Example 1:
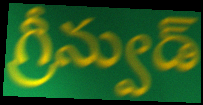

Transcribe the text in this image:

గ్రీన్వుడ్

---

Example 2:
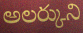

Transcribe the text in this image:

అలర్కుని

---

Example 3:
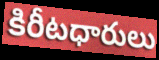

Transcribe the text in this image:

కిరీటధారులు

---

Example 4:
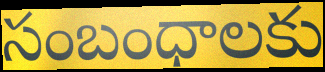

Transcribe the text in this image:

సంబంధాలకు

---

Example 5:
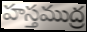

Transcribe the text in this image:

హస్తముద్ర